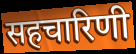
सहचारिणी